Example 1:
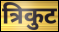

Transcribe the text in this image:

त्रिकुट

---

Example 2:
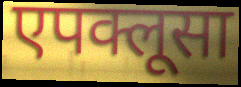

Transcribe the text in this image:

एपक्लूसा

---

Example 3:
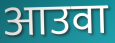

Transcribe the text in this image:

आउवा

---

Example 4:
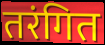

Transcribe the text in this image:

तरंगित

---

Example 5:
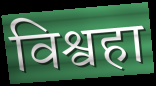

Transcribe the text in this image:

विश्वहा